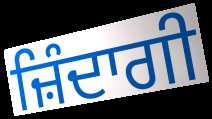
ਜ਼ਿੰਦਾਗੀ